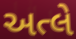
અત્લે